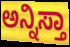
ಅನ್ನಿಸ್ತಾ